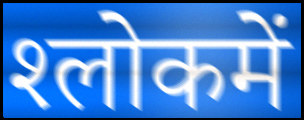
श्‍लोकमें